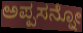
ಅಪ್ಪಸನ್ನೋ